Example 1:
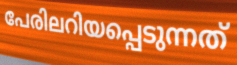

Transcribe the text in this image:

പേരിലറിയപ്പെടുന്നത്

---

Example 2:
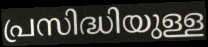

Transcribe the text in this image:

പ്രസിദ്ധിയുള്ള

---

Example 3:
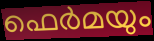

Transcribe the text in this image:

ഫെർമയും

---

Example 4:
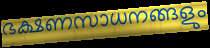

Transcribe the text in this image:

ഭക്ഷണസാധനങ്ങളും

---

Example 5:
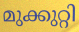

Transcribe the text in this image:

മുക്കുറ്റി